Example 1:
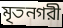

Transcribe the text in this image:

মৃতনগরী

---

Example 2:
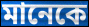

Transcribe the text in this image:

মানেকে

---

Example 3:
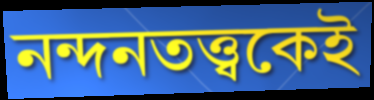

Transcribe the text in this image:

নন্দনতত্ত্বকেই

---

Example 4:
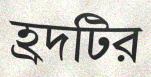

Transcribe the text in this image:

হ্রদটির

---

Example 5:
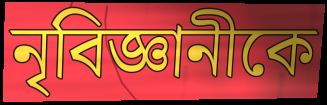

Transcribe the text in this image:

নৃবিজ্ঞানীকে